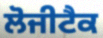
ਲੋਜੀਟੈਕ